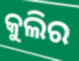
କୁଲିର